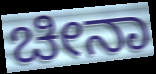
ಚೀನಾ